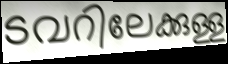
ടവറിലേക്കുള്ള